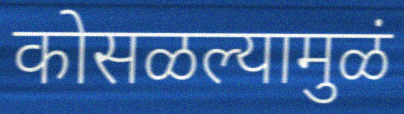
कोसळल्यामुळं